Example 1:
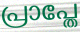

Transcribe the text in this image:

പ്രാപ്തേ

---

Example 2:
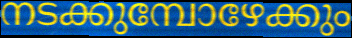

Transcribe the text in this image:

നടക്കുമ്പോഴേക്കും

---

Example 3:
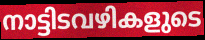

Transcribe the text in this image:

നാട്ടിടവഴികളുടെ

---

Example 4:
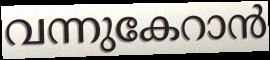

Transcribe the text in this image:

വന്നുകേറാൻ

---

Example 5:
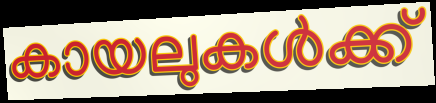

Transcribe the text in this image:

കായലുകൾക്ക്